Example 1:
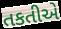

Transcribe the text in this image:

તકતીએ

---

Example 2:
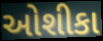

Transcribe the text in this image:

ઓશીકા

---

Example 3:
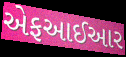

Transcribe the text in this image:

એફઆઈઆર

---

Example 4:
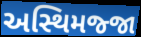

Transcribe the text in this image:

અસ્થિમજ્જા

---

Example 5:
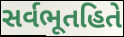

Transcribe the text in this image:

સર્વભૂતહિતે